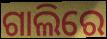
ଗାଲିରେ